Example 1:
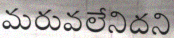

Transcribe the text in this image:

మరువలేనిదని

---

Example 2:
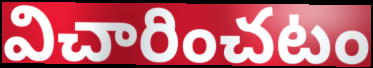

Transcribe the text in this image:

విచారించటం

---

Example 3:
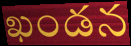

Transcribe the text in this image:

ఖండన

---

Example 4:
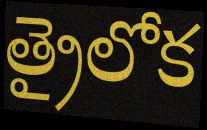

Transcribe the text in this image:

త్రైలోక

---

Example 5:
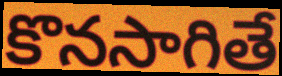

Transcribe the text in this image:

కొనసాగితే